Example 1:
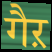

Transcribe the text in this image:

गैऱ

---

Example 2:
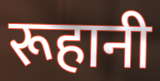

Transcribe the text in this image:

रूहानी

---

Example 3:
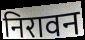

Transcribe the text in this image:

निरावन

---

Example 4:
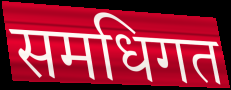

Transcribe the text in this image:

समधिगत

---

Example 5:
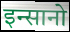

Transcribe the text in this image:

इन्सानो